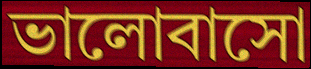
ভালোবাসো